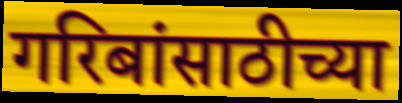
गरिबांसाठीच्या